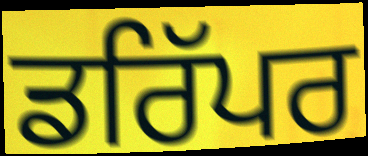
ਡਰਿੱਪਰ